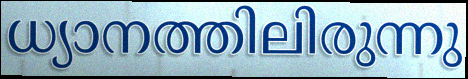
ധ്യാനത്തിലിരുന്നു